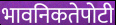
भावनिकतेपोटी